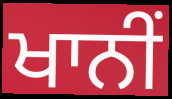
ਖਾਨੀਂ